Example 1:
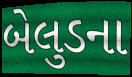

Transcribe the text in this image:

બેલુડના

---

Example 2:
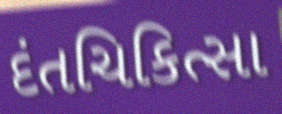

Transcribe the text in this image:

દંતચિકિત્સા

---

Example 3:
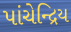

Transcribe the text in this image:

પાંચેન્દ્રિય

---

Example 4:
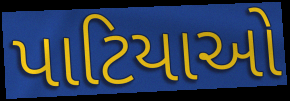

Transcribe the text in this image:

પાટિયાઓ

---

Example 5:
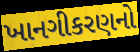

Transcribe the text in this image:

ખાનગીકરણનો